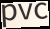
pvc